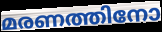
മരണത്തിനോ